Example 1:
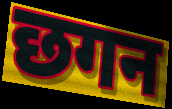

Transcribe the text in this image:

छगन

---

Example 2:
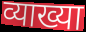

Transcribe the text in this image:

व्याख्या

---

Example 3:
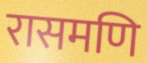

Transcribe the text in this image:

रासमणि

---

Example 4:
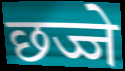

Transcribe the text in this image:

छज्जे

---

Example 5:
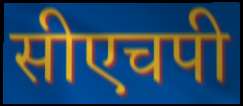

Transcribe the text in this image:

सीएचपी